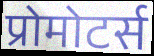
प्रोमोटर्स